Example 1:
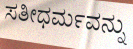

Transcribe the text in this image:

ಸತೀಧರ್ಮವನ್ನು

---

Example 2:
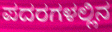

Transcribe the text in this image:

ಪದರಗಳಲ್ಲಿನ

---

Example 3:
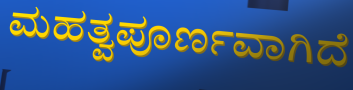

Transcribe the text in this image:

ಮಹತ್ವಪೂರ್ಣವಾಗಿದೆ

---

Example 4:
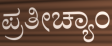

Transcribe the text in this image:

ಪ್ರತೀಚ್ಯಾಂ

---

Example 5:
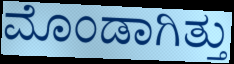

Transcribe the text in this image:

ಮೊಂಡಾಗಿತ್ತು